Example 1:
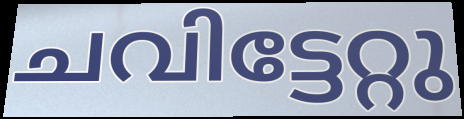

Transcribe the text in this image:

ചവിട്ടേറ്റു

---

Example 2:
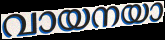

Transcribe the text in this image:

വായനയാ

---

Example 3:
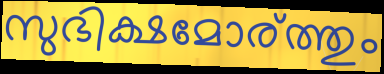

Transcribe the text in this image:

സുഭിക്ഷമോര്ത്തും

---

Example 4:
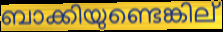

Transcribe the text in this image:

ബാക്കിയുണ്ടെങ്കില്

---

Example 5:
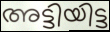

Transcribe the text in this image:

അട്ടിയിട്ട